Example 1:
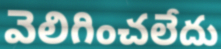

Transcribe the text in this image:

వెలిగించలేదు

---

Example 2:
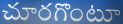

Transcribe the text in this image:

చూరగొంటూ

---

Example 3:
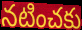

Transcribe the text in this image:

నటించకు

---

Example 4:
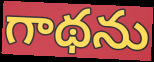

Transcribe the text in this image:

గాథను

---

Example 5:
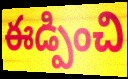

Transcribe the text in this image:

ఈడ్పించి